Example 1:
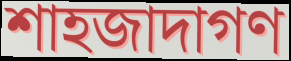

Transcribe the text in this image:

শাহজাদাগণ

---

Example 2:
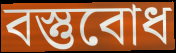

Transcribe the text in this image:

বস্তুবোধ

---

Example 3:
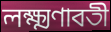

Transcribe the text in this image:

লক্ষ্মণাবতী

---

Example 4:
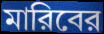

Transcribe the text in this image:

মারিবের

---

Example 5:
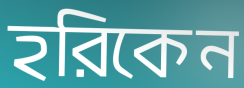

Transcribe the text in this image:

হরিকেন